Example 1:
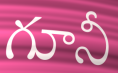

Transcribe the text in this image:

గూనీ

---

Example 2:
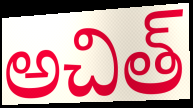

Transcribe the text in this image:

అచిత్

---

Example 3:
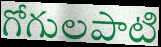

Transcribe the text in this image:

గోగులపాటి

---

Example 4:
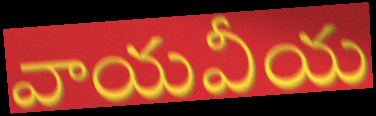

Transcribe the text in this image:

వాయవీయ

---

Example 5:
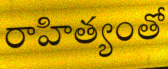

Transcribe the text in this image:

రాహిత్యంతో